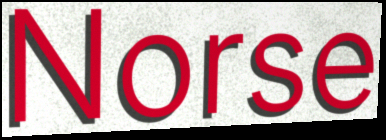
Norse